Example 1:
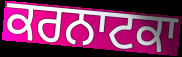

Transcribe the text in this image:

ਕਰਨਾਟਕਾ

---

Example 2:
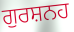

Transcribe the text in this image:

ਗੁਰਸ਼ਨਹ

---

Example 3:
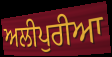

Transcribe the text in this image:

ਅਲੀਪੁਰੀਆ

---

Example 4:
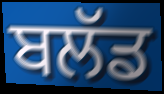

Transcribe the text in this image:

ਬਲੱਡ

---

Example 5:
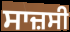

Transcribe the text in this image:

ਸਾਜ਼ਸੀ